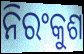
ନିରଂକୁଶ